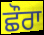
ਛੌਰਾ